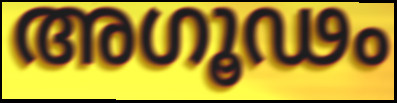
അഗൂഢം